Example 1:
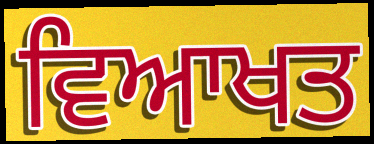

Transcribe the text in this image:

ਵਿਆਖਤ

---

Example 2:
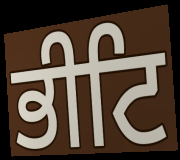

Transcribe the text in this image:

ਭੀਟਿ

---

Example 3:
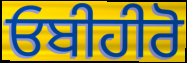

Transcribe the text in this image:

ਓਬੀਹੀਰੋ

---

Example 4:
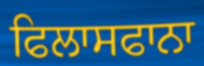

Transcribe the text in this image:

ਫਿਲਾਸਫਾਨਾ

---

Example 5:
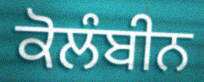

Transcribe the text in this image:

ਕੋਲੰਬੀਨ